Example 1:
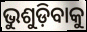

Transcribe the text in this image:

ଭୁଶୁଡ଼ିବାକୁ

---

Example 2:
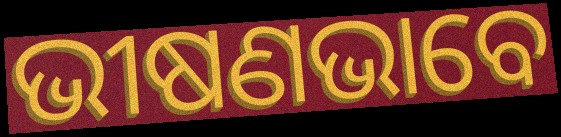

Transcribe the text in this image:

ଭୀଷଣଭାବେ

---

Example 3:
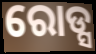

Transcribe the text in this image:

ରୋଡ୍ସ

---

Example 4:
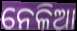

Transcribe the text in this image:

ନେଳିଆ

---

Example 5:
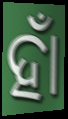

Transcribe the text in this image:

ହାଁ